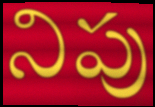
నిపు